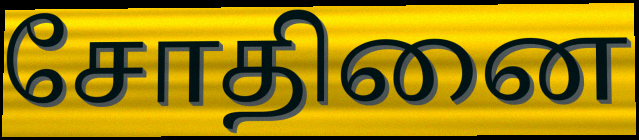
சோதினை